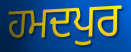
ਹਮਦਪੁਰ